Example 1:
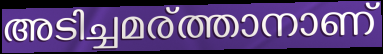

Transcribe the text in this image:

അടിച്ചമര്ത്താനാണ്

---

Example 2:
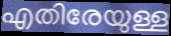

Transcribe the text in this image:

എതിരേയുള്ള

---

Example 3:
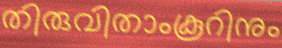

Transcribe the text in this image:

തിരുവിതാംകൂറിനും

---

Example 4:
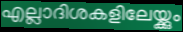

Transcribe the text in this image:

എല്ലാദിശകളിലേയ്ക്കും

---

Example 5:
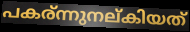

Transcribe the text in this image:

പകര്ന്നുനല്കിയത്